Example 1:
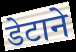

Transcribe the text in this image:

डेटाने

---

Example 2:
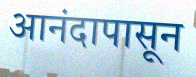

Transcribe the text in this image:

आनंदापासून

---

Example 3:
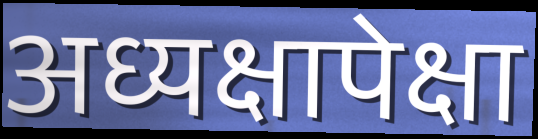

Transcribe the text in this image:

अध्यक्षापेक्षा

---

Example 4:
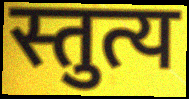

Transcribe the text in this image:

स्तुत्य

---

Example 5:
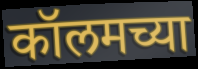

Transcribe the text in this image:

कॉलमच्या